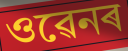
ওৱেনৰ